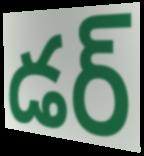
డర్